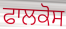
ਫਾਲਕੋਸ